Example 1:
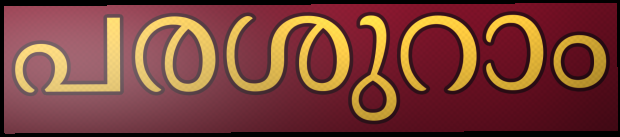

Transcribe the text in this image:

പരശുറാം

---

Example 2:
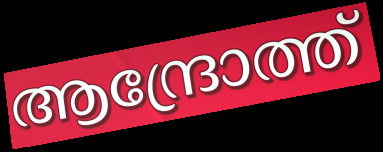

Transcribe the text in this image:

ആന്ദ്രോത്ത്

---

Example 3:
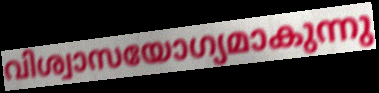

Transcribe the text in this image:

വിശ്വാസയോഗ്യമാകുന്നു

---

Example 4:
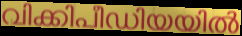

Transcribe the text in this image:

വിക്കിപീഡിയയിൽ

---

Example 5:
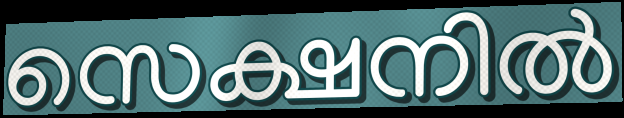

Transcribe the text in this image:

സെക്ഷനിൽ